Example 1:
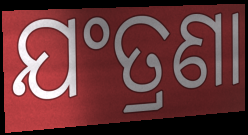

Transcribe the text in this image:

ଯଂତ୍ରଣା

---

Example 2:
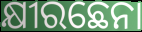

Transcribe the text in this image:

କ୍ଷୀରଛେନା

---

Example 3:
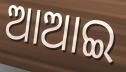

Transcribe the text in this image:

ଆଆଇ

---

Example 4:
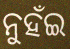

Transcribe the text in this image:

ନୁହଁଇ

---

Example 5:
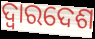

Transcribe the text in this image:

ଦ୍ୱାରଦେଶ